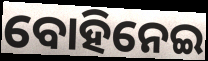
ବୋହିନେଇ